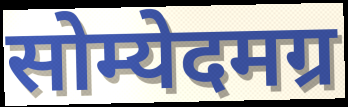
सोम्येदमग्र